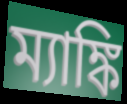
ম্যাঙ্কি